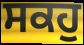
ਸਕਹੁ